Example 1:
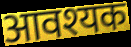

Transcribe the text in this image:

आवश्‍यक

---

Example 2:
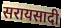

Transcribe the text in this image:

सरायसादी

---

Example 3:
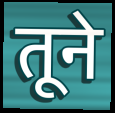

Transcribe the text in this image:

तूने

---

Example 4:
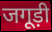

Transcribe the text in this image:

जगूड़ी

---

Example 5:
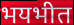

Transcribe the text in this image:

भयभीत